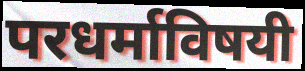
परधर्माविषयी